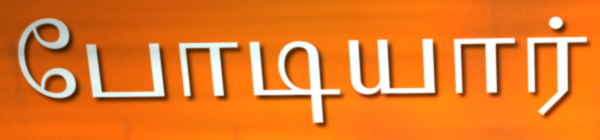
போடியார்